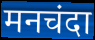
मनचंदा